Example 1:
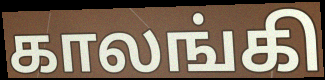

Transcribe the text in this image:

காலங்கி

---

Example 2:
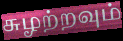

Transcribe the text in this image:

சுழற்றவும்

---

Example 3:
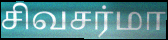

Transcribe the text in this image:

சிவசர்மா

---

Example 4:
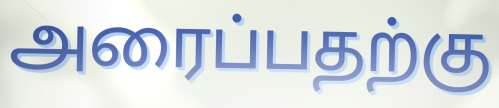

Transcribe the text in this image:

அரைப்பதற்கு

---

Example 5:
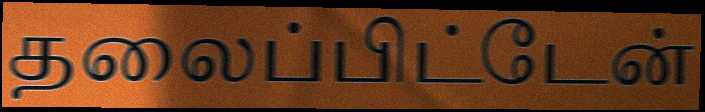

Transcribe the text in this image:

தலைப்பிட்டேன்